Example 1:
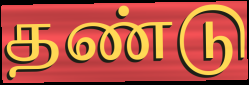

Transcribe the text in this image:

தண்டு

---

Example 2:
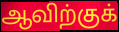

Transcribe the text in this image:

ஆவிற்குக்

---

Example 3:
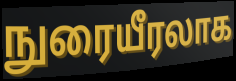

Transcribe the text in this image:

நுரையீரலாக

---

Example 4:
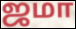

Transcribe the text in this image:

ஜமா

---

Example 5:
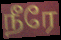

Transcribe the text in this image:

நீரே